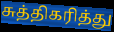
சுத்திகரித்து